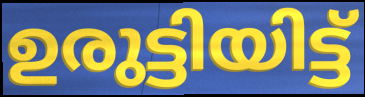
ഉരുട്ടിയിട്ട്